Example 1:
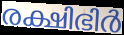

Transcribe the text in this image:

രക്ഷിഭിർ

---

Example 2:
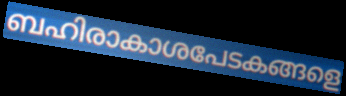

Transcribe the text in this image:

ബഹിരാകാശപേടകങ്ങളെ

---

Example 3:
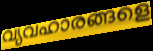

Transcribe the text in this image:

വ്യവഹാരങ്ങളെ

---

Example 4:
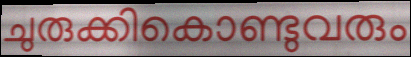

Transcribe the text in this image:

ചുരുക്കികൊണ്ടുവരും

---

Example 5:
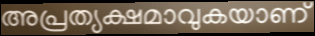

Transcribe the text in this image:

അപ്രത്യക്ഷമാവുകയാണ്